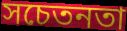
সচেতনতা